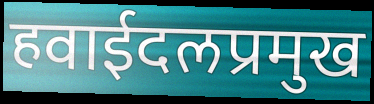
हवाईदलप्रमुख